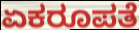
ಏಕರೂಪತೆ